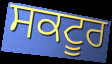
ਸਕਟੂਰ